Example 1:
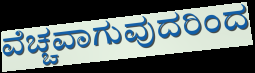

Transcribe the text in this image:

ವೆಚ್ಚವಾಗುವುದರಿಂದ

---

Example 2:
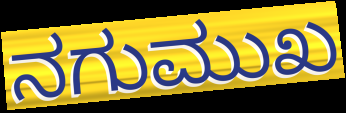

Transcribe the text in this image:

ನಗುಮುಖ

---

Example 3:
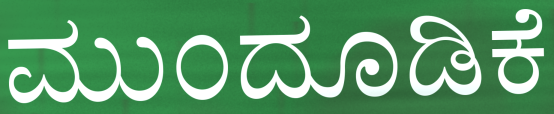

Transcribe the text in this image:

ಮುಂದೂಡಿಕೆ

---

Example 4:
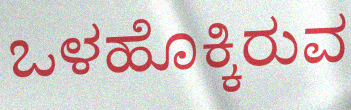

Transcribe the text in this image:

ಒಳಹೊಕ್ಕಿರುವ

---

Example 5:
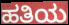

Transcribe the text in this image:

ಹತಿಯ